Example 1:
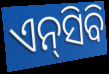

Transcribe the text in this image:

ଏନ୍‌ସିବି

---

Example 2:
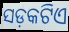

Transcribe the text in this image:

ସଡ଼କଟିଏ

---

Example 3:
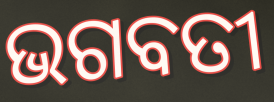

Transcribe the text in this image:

ଭଗବତୀ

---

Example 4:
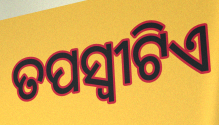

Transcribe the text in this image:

ତପସ୍ୱୀଟିଏ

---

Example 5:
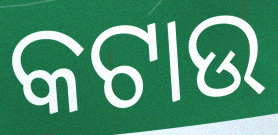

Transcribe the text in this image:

କଟାଉ